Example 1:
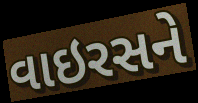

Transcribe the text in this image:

વાઇરસને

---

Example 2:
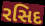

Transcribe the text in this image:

રસિદ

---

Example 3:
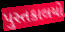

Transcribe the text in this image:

પુસ્તકાલયો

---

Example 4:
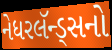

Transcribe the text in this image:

નેધરલૅન્ડ્સનો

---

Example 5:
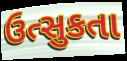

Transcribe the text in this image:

ઉત્સુકતા